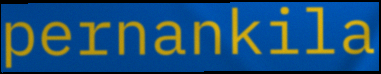
pernankila